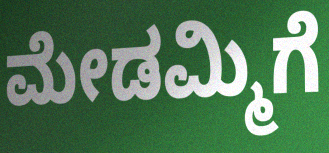
ಮೇಡಮ್ಮಿಗೆ